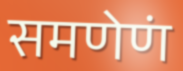
समणेणं